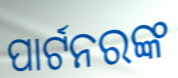
ପାର୍ଟନରଙ୍କ